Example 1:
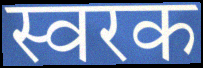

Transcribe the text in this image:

स्वरक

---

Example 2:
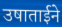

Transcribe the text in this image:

उषाताईने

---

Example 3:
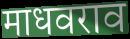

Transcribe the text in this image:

माधवराव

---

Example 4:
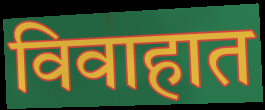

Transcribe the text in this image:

विवाहात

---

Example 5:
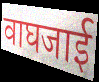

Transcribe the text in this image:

वाघजाई